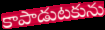
కాపాడుటకును